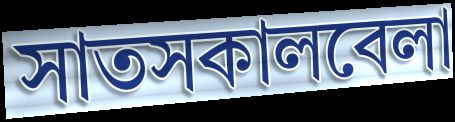
সাতসকালবেলা